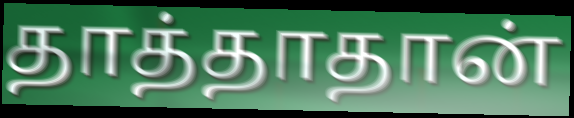
தாத்தாதான்